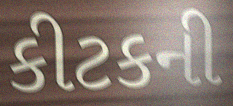
કીટકની